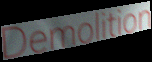
Demolition